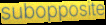
subopposite